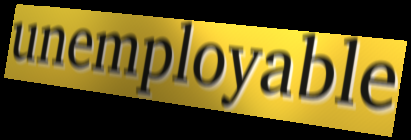
unemployable